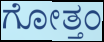
ಗೋತ್ತಂ